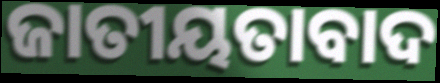
ଜାତୀୟତାବାଦ